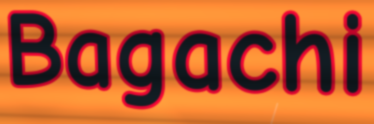
Bagachi